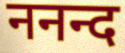
ननन्द